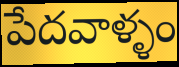
పేదవాళ్ళం